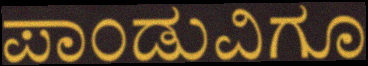
ಪಾಂಡುವಿಗೂ